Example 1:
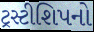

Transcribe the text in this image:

ટ્રસ્ટીશિપનો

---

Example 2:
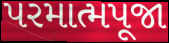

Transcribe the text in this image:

પરમાત્મપૂજા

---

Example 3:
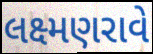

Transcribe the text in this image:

લક્ષ્મણરાવે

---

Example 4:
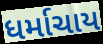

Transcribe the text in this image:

ધર્માચાય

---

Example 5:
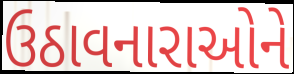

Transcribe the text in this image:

ઉઠાવનારાઓને